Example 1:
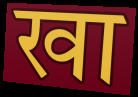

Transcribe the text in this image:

खा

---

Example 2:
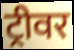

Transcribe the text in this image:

ट्रीवर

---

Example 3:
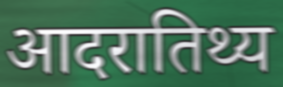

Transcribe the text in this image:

आदरातिथ्य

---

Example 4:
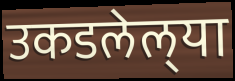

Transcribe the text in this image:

उकडलेल्या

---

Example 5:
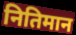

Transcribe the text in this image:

नितिमान